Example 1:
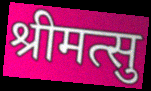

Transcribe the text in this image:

श्रीमत्सु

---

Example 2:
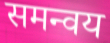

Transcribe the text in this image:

समन्वय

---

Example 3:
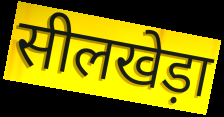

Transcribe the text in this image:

सीलखेड़ा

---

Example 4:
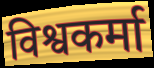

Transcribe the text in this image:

विश्वकर्मा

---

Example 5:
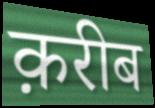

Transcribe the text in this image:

क़रीब